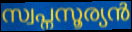
സ്വപ്നസൂര്യൻ